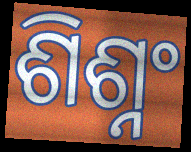
ଶିଶ୍ନଂ